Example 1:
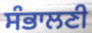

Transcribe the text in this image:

ਸੰਭਾਲਣੀ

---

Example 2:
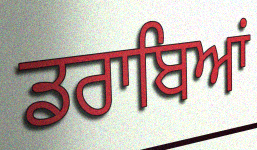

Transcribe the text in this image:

ਡਰਾਬਿਆਂ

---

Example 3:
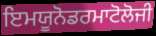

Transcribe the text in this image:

ਇਮਯੂਨੋਡਰਮਾਟੋਲੋਜੀ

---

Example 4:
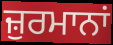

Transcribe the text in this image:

ਜ਼ੁਰਮਾਨਾਂ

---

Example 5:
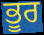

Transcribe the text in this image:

ਭੂਰ